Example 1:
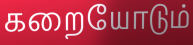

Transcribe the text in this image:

கறையோடும்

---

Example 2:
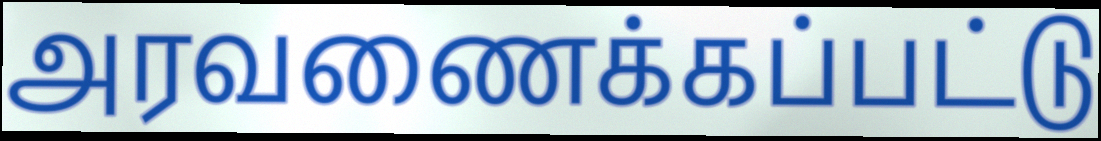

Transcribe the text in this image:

அரவணைக்கப்பட்டு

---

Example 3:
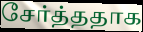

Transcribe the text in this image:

சேர்த்ததாக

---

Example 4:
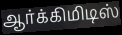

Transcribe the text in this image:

ஆர்க்கிமிடிஸ்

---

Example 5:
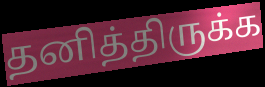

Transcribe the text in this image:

தனித்திருக்க